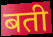
बती